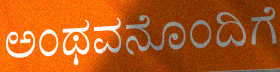
ಅಂಥವನೊಂದಿಗೆ